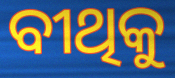
ବୀଥିକୁ